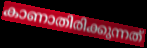
കാണാതിരിക്കുന്നത്